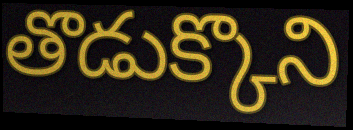
తొడుక్కొని